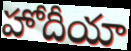
హోదీయా